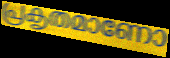
പ്രകൃതമാണോ